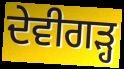
ਦੇਵੀਗੜ੍ਹ